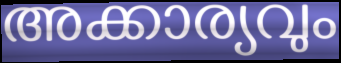
അക്കാര്യവും